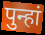
पुन्हां